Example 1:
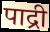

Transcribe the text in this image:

पाद्री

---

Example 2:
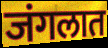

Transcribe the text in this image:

जंगलात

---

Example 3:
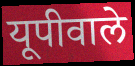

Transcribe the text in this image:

यूपीवाले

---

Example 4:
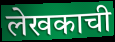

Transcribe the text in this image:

लेखकाची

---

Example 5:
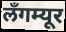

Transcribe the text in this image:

लँगम्यूर